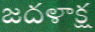
జదళాక్ష